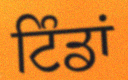
ਟਿੰਡਾਂ